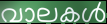
വാലകൾ